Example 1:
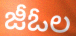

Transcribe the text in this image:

జీఓల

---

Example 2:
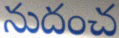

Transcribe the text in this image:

నుదంచ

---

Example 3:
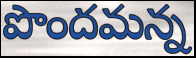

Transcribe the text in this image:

పొందమన్న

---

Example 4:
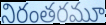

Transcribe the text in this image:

నిరంతరమూ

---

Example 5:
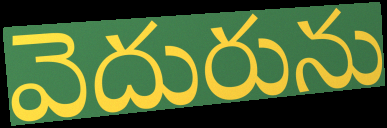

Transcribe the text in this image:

వెదురును